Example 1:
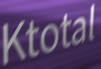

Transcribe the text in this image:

Ktotal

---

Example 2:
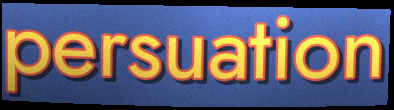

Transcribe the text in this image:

persuation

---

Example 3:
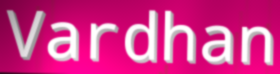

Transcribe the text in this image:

Vardhan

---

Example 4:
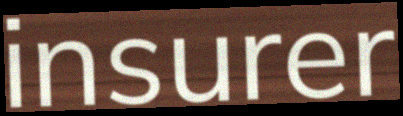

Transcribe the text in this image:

insurer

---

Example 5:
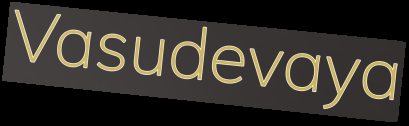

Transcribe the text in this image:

Vasudevaya